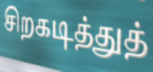
சிறகடித்துத்